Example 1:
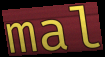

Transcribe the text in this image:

mal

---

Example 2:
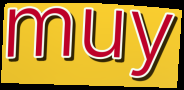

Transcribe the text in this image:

muy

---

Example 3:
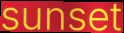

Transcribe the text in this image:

sunset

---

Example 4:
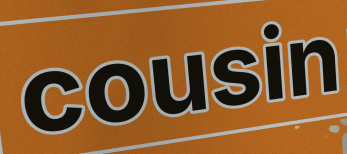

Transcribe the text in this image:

cousin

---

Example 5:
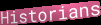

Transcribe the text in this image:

Historians